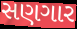
સણગાર